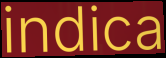
indica